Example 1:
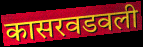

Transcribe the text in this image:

कासरवडवली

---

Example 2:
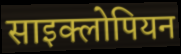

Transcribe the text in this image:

साइक्लोपियन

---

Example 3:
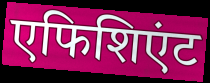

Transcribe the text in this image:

एफिशिएंट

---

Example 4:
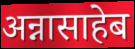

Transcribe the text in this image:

अन्नासाहेब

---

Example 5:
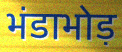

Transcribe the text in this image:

भंडाभोड़